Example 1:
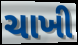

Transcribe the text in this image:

ચાખી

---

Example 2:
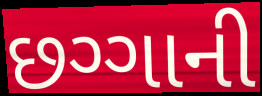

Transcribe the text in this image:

છગ્ગાની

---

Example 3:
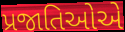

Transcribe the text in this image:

પ્રજાતિઓએ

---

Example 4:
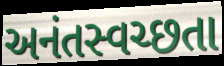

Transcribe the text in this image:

અનંતસ્વચ્છતા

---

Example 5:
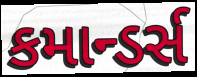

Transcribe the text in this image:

કમાન્ડર્સ